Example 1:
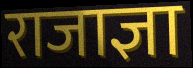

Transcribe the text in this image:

राजाज्ञा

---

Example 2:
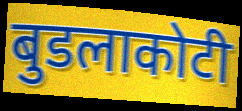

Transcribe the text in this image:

बुडलाकोटी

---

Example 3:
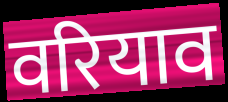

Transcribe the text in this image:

वरियाव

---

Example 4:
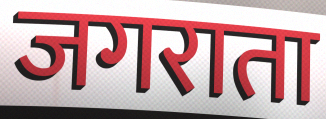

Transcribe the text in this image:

जगराता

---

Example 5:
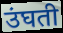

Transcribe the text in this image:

उंघती